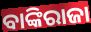
ବାଙ୍କିରାଜା